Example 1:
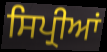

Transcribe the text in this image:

ਸਿਪ੍ਰੀਆਂ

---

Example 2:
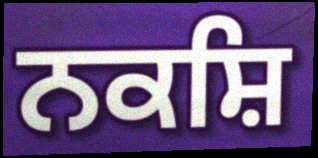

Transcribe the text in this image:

ਨਕਸ਼ਿ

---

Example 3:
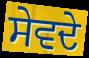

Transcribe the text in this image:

ਸੇਵਦੇ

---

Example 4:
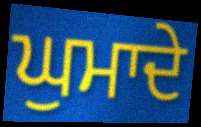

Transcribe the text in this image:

ਘੁਮਾਦੇ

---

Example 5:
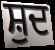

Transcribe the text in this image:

ਸ਼ੁਦ